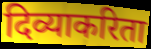
दिव्याकरिता